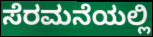
ಸೆರಮನೆಯಲ್ಲಿ